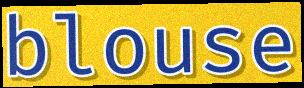
blouse